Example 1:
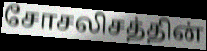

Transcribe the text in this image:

சோசலிசத்தின்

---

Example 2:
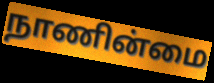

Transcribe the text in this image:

நாணின்மை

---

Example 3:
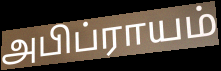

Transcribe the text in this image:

அபிப்ராயம்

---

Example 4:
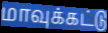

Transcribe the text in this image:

மாவுக்கட்டு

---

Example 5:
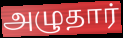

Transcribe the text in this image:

அழுதார்